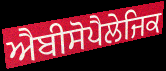
ਐਬੀਸੋਪੈਲੇਜਿਕ